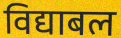
विद्याबल